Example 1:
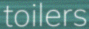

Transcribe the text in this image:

toilers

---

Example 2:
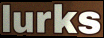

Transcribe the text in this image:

lurks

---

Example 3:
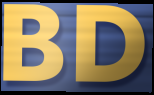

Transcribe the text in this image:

BD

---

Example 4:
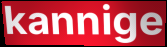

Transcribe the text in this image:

kannige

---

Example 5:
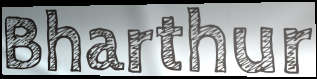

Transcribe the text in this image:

Bharthur